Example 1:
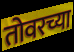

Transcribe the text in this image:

तोवरच्या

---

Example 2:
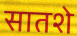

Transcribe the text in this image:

सातशे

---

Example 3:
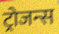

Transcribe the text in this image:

ट्रोजन्स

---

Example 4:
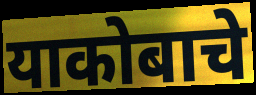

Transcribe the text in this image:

याकोबाचे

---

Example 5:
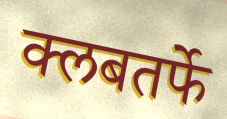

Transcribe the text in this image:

क्लबतर्फे